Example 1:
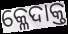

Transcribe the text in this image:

କ୍ଳେଦାକ୍ତ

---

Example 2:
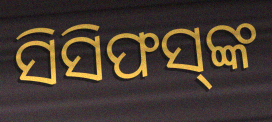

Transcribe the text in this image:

ସିସିଫସ୍‌ଙ୍କ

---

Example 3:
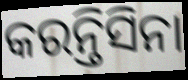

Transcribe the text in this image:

କରନ୍ତିସିନା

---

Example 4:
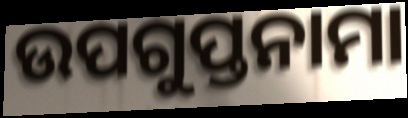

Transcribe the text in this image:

ଉପଗୁପ୍ତନାମା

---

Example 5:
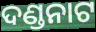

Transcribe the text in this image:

ଦଣ୍ଡନାଟ